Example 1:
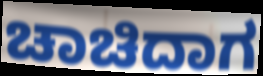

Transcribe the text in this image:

ಚಾಚಿದಾಗ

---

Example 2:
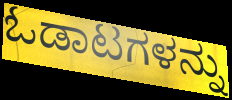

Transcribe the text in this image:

ಓಡಾಟಗಳನ್ನು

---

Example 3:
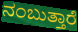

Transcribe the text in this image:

ನಂಬುತ್ತಾರೆ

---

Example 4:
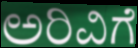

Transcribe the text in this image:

ಅರಿವಿಗೆ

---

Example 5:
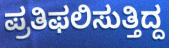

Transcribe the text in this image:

ಪ್ರತಿಫಲಿಸುತ್ತಿದ್ದ